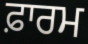
ਫ਼ਾਰਮ